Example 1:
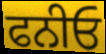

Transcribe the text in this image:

ਫਨੀਓ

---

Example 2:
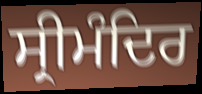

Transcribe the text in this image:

ਸ੍ਰੀਮੰਦਿਰ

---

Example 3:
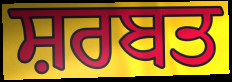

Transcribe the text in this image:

ਸ਼ਰਬਤ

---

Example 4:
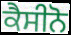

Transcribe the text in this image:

ਕੈਸੀਨੋ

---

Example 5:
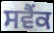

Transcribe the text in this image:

ਸਵੈਂਕ